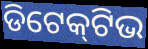
ଡିଟେକ୍‍ଟିଭ